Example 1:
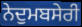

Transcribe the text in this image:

ਨੇਦੁਮਬਸੇਰੀ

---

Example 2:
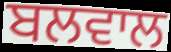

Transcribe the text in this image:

ਬਲਵਾਲ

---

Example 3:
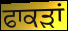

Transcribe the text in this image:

ਫਾਕੜਾਂ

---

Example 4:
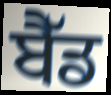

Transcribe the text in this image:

ਬੈੱਡ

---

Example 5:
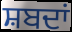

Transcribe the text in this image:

ਸ਼ਬਦਾਂ